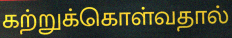
கற்றுக்கொள்வதால்